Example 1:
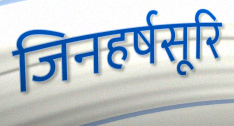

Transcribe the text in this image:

जिनहर्षसूरि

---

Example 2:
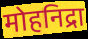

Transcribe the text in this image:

मोहनिद्रा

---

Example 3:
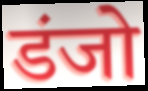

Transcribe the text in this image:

डंजो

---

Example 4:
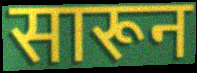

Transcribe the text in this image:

सारून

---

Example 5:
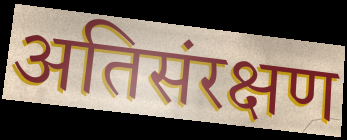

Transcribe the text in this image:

अतिसंरक्षण